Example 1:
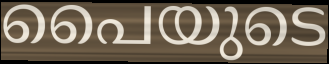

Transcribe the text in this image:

പൈയുടെ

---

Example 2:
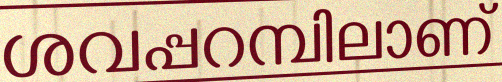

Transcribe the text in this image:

ശവപ്പറമ്പിലാണ്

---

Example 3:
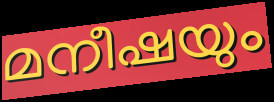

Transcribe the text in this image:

മനീഷയും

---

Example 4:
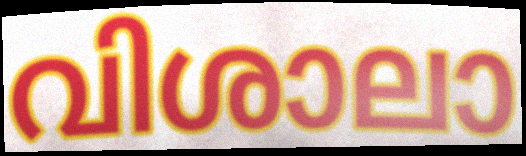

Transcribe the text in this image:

വിശാലാ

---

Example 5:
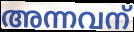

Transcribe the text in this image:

അന്നവന്